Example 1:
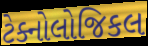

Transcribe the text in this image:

ટેક્નોલોજિકલ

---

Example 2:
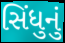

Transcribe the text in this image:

સિંધુનું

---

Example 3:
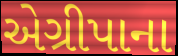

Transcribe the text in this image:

એગ્રીપાના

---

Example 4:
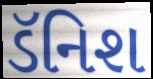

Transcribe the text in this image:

ડૅનિશ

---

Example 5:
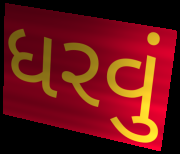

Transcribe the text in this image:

ધરવું